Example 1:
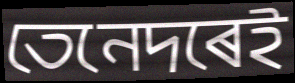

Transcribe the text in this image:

তেনেদৰেই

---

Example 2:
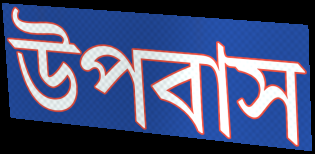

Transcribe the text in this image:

উপবাস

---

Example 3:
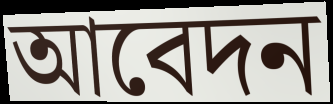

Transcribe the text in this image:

আবেদন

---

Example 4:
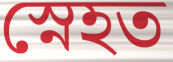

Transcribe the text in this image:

স্নেহত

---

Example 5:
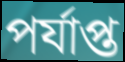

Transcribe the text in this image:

পৰ্যাপ্ত